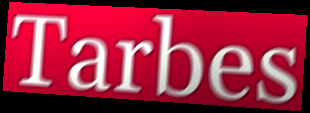
Tarbes